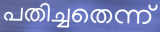
പതിച്ചതെന്ന്